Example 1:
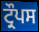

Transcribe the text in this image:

ਟ੍ਰੌਪਸ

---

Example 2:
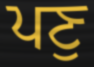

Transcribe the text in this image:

ਪਣੁ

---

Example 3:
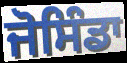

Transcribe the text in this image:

ਜੋਸਿੰਡਾ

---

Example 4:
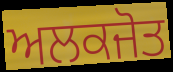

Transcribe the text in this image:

ਅਲਕਜੋਤ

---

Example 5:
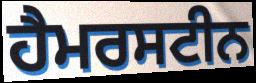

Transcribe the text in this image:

ਹੈਮਰਸਟੀਨ